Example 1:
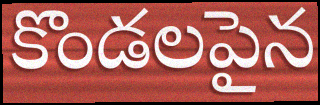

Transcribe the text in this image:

కొండలపైన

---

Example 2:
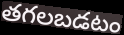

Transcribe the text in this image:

తగలబడటం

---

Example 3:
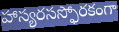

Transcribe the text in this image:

హాస్యరసస్ఫోరకంగా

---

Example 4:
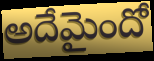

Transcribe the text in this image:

అదేమైందో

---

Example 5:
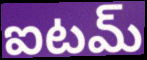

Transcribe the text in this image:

ఐటమ్